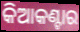
କିଆକଣ୍ଟାର